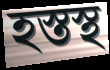
হস্তস্থ